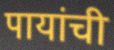
पायांची